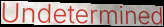
Undetermined